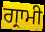
ਗ੍ਰਾਮੀ